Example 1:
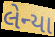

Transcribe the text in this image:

લેન્યા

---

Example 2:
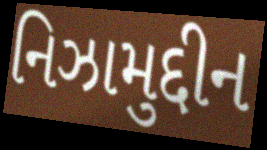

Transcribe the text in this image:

નિઝામુદ્દીન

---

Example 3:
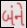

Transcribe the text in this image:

બંને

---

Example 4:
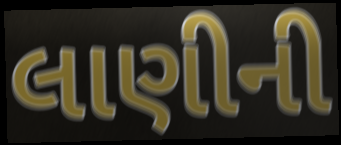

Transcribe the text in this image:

લાણીની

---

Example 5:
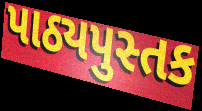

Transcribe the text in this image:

પાઠ્યપુસ્તક